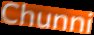
Chunni